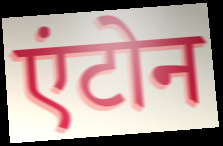
एंटोन